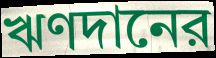
ঋণদানের